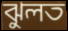
ঝুলত